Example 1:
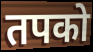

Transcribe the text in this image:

तपको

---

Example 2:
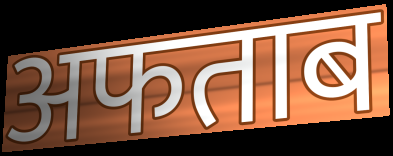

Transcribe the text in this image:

अफताब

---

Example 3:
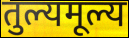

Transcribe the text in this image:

तुल्यमूल्य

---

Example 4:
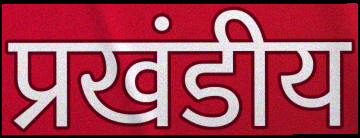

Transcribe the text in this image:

प्रखंडीय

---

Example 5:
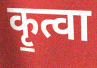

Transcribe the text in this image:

कृ॒त्वा